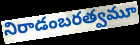
నిరాడంబరత్వమూ